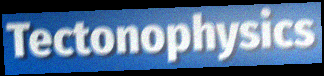
Tectonophysics